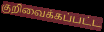
குறிவைக்கப்பட்ட